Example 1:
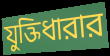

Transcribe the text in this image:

যুক্তিধারার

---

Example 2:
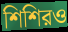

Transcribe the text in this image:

শিশিরও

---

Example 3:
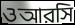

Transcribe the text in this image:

ওআরসি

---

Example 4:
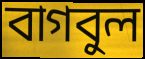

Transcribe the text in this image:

বাগবুল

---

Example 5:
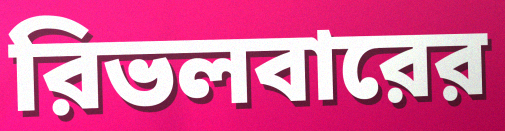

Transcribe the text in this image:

রিভলবারের